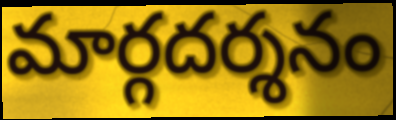
మార్గదర్శనం